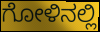
ಗೋಳಿನಲ್ಲಿ